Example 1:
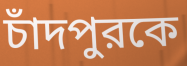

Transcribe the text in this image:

চাঁদপুরকে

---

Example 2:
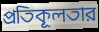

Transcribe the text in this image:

প্রতিকূলতার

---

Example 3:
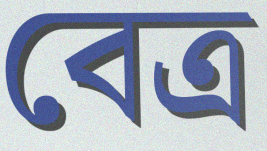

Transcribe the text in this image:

বেত্র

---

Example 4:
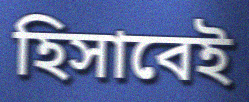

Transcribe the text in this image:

হিসাবেই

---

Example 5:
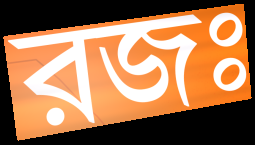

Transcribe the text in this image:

রজঃ